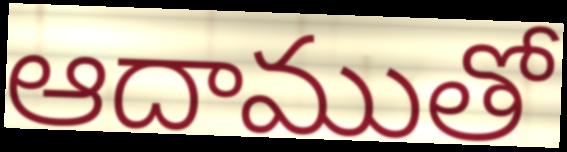
ఆదాముతో